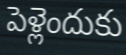
పెళ్లెందుకు